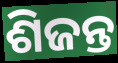
ଶିଜନ୍ତ